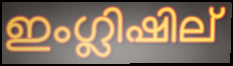
ഇംഗ്ലിഷില്